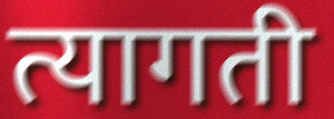
त्यागती